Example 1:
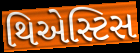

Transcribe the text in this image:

થિએસ્ટિસ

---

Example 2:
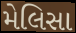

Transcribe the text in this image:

મેલિસા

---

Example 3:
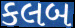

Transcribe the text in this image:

કલબ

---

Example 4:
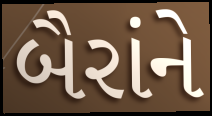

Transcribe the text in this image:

બૈરાંને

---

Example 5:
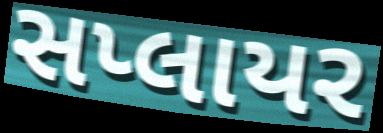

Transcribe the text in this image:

સપ્લાયર